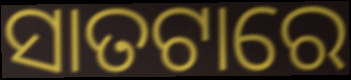
ସାତଟାରେ